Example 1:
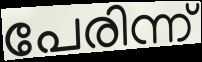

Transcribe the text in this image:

പേരിന്ന്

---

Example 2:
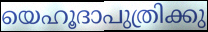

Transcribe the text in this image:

യെഹൂദാപുത്രിക്കു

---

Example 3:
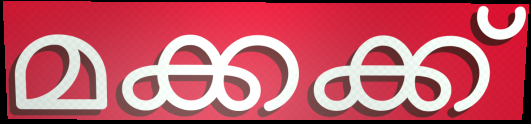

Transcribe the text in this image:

മക്കക്ക്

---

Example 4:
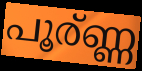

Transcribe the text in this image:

പൂര്ണ്ണ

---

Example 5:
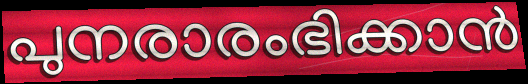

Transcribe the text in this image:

പുനരാരംഭിക്കാൻ